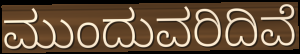
ಮುಂದುವರಿದಿವೆ